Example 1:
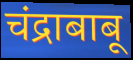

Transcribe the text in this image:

चंद्राबाबू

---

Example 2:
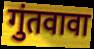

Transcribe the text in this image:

गुंतवावा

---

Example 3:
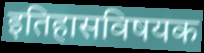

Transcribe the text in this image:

इतिहासविषयक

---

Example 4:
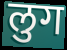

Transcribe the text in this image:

लुग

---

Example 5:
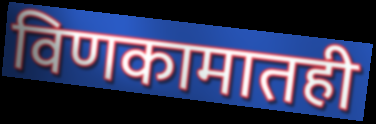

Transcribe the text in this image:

विणकामातही